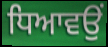
ਧਿਆਵਉਂ